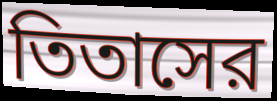
তিতাসের